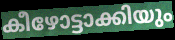
കീഴോട്ടാക്കിയും